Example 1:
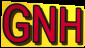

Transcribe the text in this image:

GNH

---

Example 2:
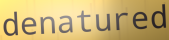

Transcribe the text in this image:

denatured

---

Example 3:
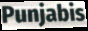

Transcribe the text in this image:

Punjabis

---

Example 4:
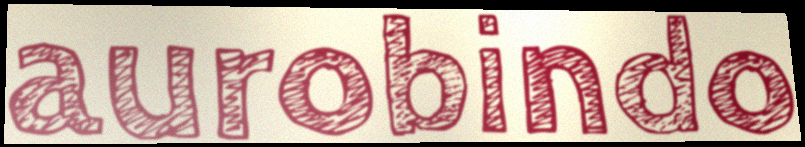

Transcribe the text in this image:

aurobindo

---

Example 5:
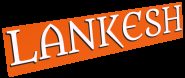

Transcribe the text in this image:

LANKESH